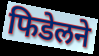
फिडेलने